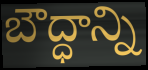
బౌద్ధాన్ని